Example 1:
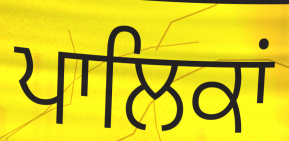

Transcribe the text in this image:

ਪਾਲਿਕਾਂ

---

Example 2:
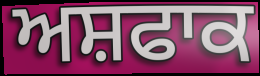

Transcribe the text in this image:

ਅਸ਼ਫਾਕ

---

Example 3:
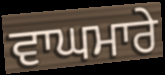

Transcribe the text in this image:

ਵਾਘਮਾਰੇ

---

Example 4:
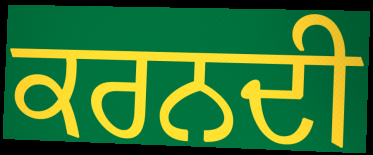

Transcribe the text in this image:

ਕਰਨਦੀ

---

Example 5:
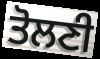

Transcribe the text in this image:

ਤੋਲਣੀ